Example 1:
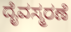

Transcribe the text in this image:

ದೈವಸ್ಮರಣೆ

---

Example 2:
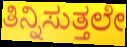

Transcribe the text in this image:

ತಿನ್ನಿಸುತ್ತಲೇ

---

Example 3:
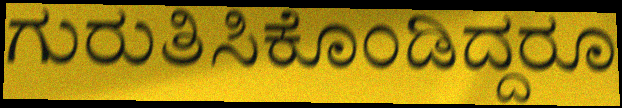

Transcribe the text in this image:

ಗುರುತಿಸಿಕೊಂಡಿದ್ದರೂ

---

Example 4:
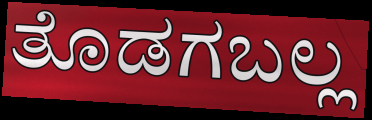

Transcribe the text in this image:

ತೊಡಗಬಲ್ಲ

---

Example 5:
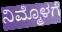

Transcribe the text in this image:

ನಿಮ್ಮೊಳಗೆ